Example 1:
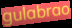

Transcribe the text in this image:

gulabrao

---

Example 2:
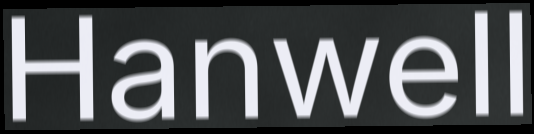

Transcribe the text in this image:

Hanwell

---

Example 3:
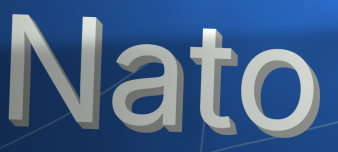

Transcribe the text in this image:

Nato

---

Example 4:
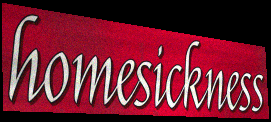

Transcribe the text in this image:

homesickness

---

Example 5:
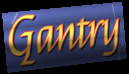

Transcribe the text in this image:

Gantry